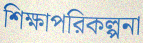
শিক্ষাপরিকল্পনা